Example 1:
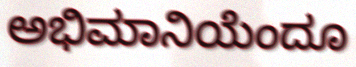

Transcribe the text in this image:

ಅಭಿಮಾನಿಯೆಂದೂ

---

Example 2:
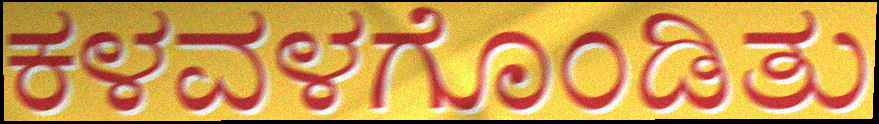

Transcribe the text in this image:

ಕಳವಳಗೊಂಡಿತು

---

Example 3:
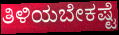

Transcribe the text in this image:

ತಿಳಿಯಬೇಕಷ್ಟೆ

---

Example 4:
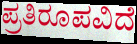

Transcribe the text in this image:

ಪ್ರತಿರೂಪವಿದೆ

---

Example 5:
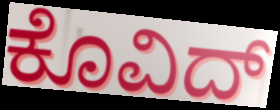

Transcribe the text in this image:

ಕೊವಿದ್